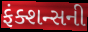
ફંક્શન્સની